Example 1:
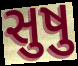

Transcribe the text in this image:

સુષુ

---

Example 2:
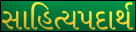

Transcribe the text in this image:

સાહિત્યપદાર્થ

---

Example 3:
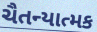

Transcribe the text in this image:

ચૈતન્યાત્મક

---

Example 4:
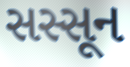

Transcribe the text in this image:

સસ્સૂન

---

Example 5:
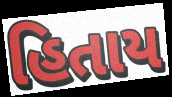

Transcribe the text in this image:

હિતાય